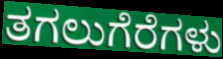
ತಗಲುಗೆರೆಗಳು